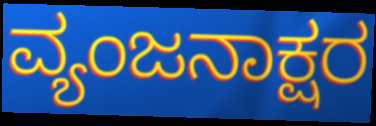
ವ್ಯಂಜನಾಕ್ಷರ